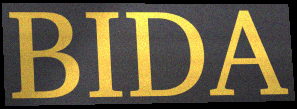
BIDA